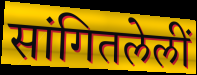
सांगितलेलीं